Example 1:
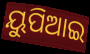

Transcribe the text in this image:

ୟୁପିଆଇ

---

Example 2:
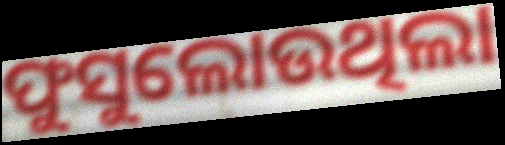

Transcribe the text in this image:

ଫୁସୁଲୋଉଥିଲା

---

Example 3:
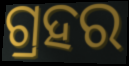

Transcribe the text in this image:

ଗ୍ରହର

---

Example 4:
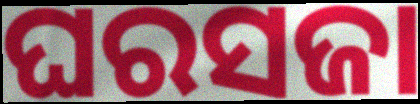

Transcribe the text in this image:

ଘରସଜା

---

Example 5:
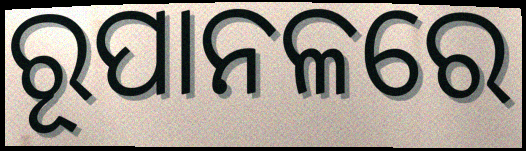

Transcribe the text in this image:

ରୂପାନଳରେ